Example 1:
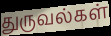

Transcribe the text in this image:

துருவல்கள்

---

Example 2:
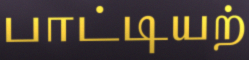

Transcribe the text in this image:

பாட்டியற்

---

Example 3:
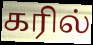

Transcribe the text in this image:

கரில்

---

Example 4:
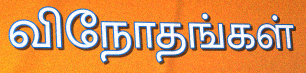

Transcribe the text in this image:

விநோதங்கள்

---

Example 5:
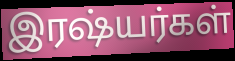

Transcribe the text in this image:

இரஷ்யர்கள்